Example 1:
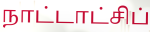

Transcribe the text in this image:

நாட்டாட்சிப்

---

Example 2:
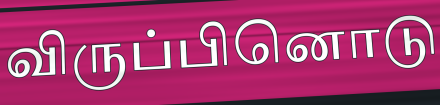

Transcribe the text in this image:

விருப்பினொடு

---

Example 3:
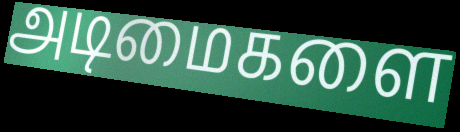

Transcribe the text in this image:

அடிமைகளை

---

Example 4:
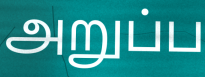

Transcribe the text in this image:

அறுப்ப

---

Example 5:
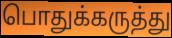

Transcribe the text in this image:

பொதுக்கருத்து